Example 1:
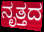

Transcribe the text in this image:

ನೃತ್ತದ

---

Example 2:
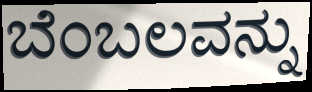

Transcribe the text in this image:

ಬೆಂಬಲವನ್ನು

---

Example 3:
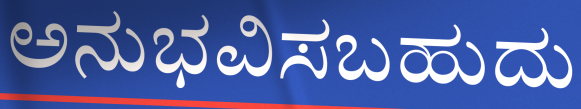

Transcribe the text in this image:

ಅನುಭವಿಸಬಹುದು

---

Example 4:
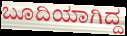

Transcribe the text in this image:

ಬೂದಿಯಾಗಿದ್ದ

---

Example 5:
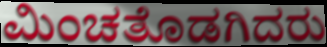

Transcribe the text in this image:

ಮಿಂಚತೊಡಗಿದರು